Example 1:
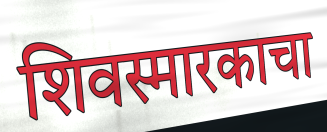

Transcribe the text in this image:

शिवस्मारकाचा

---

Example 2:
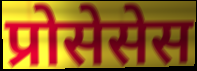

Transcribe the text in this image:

प्रोसेसेस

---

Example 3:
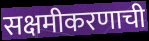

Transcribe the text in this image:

सक्षमीकरणाची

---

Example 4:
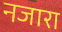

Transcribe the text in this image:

नजारा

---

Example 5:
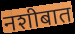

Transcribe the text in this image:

नशीबात